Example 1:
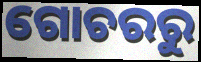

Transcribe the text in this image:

ଗୋଚରରୁ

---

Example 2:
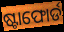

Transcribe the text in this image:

ଷ୍ଟାଫୋର୍ଡ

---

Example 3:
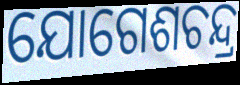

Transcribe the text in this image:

ଯୋଗେଶଚନ୍ଦ୍ର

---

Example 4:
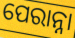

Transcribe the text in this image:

ପେରାନ୍ନା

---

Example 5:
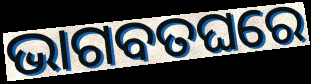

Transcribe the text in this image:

ଭାଗବତଘରେ